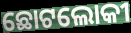
ଛୋଟଲୋକୀ